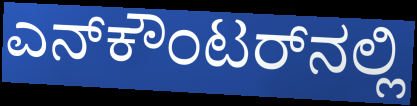
ಎನ್‌ಕೌಂಟರ್‌ನಲ್ಲಿ